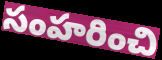
సంహరించి